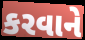
કરવાને